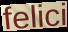
felici